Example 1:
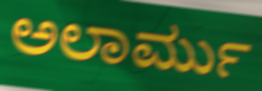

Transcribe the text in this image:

ಅಲಾರ್ಮು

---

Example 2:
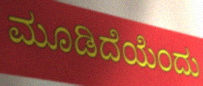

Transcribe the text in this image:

ಮೂಡಿದೆಯೆಂದು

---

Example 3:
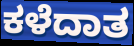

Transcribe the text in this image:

ಕಳೆದಾತ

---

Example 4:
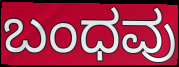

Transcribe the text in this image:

ಬಂಧವು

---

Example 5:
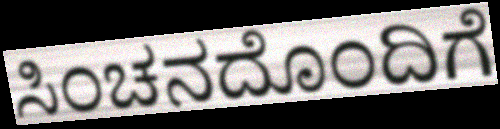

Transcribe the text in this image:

ಸಿಂಚನದೊಂದಿಗೆ